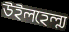
উইলহেল্ম